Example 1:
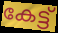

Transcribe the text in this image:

കേട്ട്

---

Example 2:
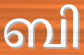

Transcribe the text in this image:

ബി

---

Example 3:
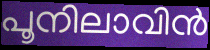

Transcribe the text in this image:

പൂനിലാവിൻ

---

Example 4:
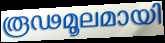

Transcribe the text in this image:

രൂഢമൂലമായി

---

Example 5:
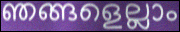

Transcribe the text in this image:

ഞങ്ങളെല്ലാം